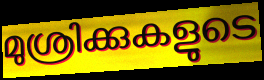
മുശ്രിക്കുകളുടെ